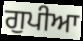
ਗੁਪੀਆ